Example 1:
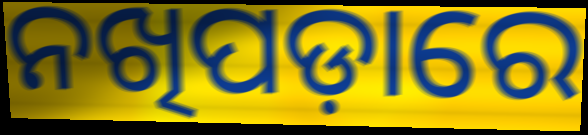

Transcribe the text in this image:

ନଖିପଡ଼ାରେ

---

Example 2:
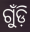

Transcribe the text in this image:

ଗୁଁଡ଼ି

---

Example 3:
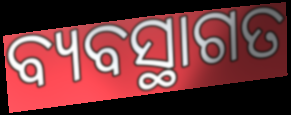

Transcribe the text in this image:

ବ୍ୟବସ୍ଥାଗତ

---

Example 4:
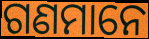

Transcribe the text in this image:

ଗଣମାନେ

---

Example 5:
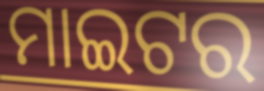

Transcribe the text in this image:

ମାଇଟର